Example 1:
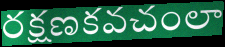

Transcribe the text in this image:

రక్షణకవచంలా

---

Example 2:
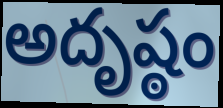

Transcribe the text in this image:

అదృష్ఠం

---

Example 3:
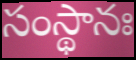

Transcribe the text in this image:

సంస్థానః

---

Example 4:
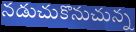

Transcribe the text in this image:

నడుచుకొనుచున్న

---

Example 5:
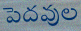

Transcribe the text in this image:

పెదవుల